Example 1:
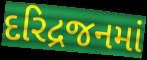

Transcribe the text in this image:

દરિદ્રજનમાં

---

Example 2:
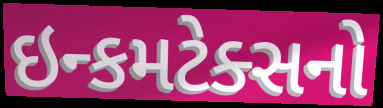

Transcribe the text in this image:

ઇન્કમટેક્સનો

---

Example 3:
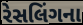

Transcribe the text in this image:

રેસલિંગના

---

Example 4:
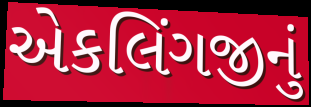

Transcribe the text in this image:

એકલિંગજીનું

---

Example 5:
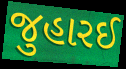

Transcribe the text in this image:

જુહારઈ